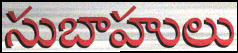
సుబాహులు